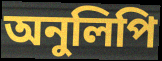
অনুলিপি